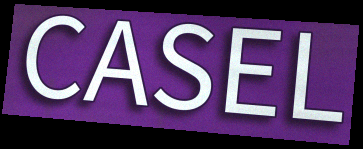
CASEL